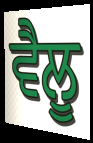
ਵੈਲੂ